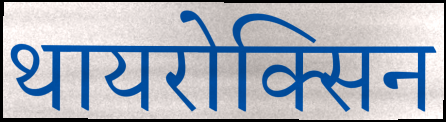
थायरोक्सिन